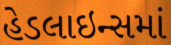
હેડલાઇન્સમાં